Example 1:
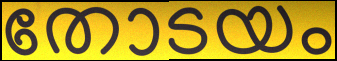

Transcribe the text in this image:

തോടയം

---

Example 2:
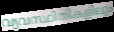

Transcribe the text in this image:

വ്യവസ്ഥിതികളിലും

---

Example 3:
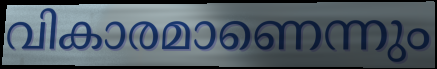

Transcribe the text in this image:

വികാരമാണെന്നും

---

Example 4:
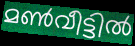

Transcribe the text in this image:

മൺവീട്ടിൽ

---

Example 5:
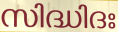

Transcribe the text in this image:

സിദ്ധിദഃ